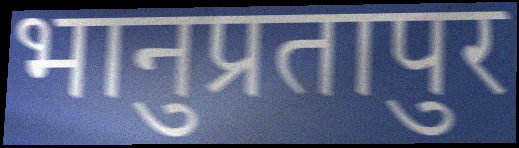
भानुप्रतापुर